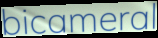
bicameral